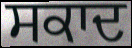
ਸਕਾਦ